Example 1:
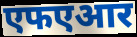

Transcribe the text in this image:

एफएआर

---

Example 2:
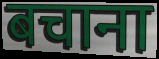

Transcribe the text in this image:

बचाना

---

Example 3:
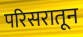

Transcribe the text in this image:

परिसरातून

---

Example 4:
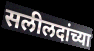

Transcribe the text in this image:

सलीलदांच्या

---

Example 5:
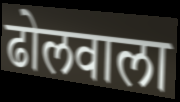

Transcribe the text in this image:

ढोलवाला